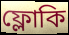
ফ্লোকি